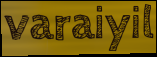
varaiyil